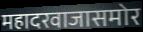
महादरवाजासमोर